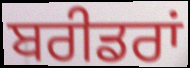
ਬਰੀਡਰਾਂ